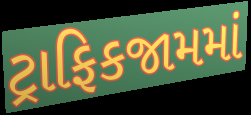
ટ્રાફિકજામમાં